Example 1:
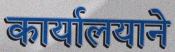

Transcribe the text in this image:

कार्यालयाने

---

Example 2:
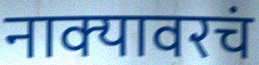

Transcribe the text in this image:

नाक्यावरचं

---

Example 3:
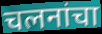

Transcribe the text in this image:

चलनांचा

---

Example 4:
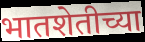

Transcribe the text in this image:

भातशेतीच्या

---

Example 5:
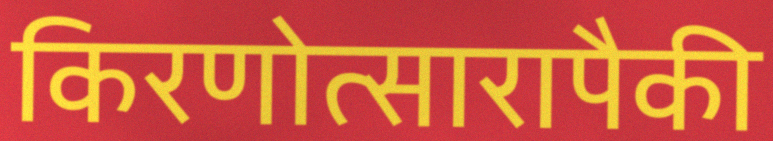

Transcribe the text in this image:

किरणोत्सारापैकी